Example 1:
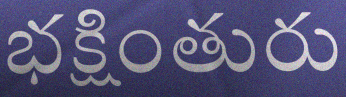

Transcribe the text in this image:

భక్షింతురు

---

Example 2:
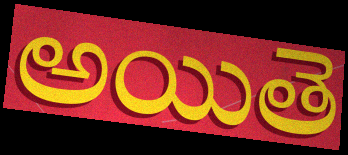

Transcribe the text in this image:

అయితె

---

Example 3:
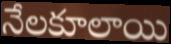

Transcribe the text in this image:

నేలకూలాయి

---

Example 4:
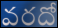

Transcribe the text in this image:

వరదో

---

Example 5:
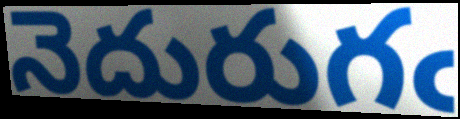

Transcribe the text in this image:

నెదురుగఁ